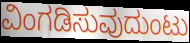
ವಿಂಗಡಿಸುವುದುಂಟು